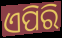
ଏପିରି